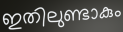
ഇതിലുണ്ടാകും